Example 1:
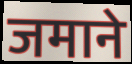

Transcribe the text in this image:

जमाने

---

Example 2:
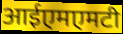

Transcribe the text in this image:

आईएमएमटी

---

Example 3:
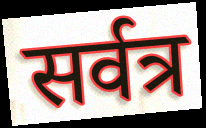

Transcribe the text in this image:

सर्वत्र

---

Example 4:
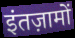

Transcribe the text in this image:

इंतज़ामों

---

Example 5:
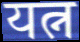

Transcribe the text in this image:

यत्न